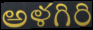
అళగిరి